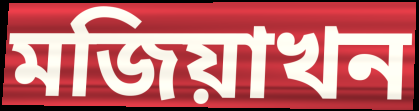
মজিয়াখন